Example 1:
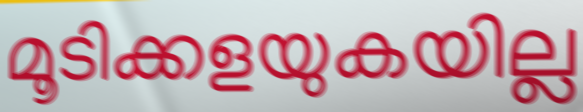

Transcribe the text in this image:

മൂടിക്കളയുകയില്ല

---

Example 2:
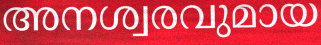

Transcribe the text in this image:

അനശ്വരവുമായ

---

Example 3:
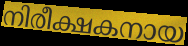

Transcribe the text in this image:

നിരീക്ഷകനായ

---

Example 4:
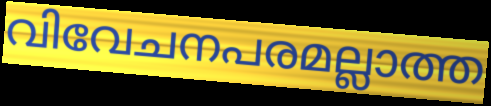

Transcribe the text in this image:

വിവേചനപരമല്ലാത്ത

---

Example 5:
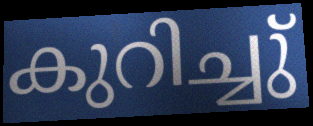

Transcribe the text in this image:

കുറിച്ചു്